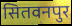
सितवनपुर